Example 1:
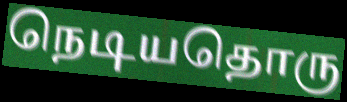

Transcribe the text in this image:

நெடியதொரு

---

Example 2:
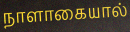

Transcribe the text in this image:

நாளாகையால்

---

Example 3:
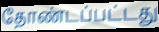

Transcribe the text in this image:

தோண்டப்பட்டது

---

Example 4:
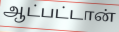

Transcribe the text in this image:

ஆட்பட்டான்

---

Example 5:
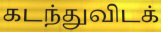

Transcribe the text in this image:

கடந்துவிடக்